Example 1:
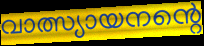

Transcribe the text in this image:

വാത്സ്യായനന്റെ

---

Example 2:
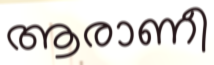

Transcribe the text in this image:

ആരാണീ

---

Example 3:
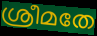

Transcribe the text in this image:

ശ്രീമതേ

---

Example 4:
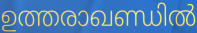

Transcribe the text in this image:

ഉത്തരാഖണ്ഡിൽ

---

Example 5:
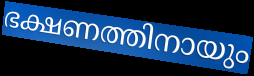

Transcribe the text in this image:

ഭക്ഷണത്തിനായും